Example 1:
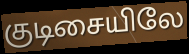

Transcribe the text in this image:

குடிசையிலே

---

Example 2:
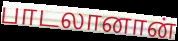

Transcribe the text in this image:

பாடலானான்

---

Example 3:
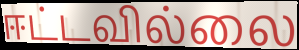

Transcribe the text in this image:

ஈட்டவில்லை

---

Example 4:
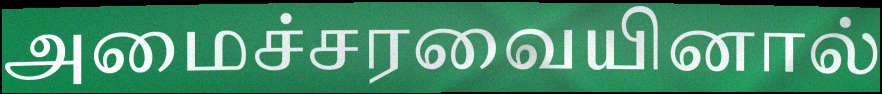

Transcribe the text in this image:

அமைச்சரவையினால்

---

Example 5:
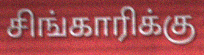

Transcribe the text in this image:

சிங்காரிக்கு